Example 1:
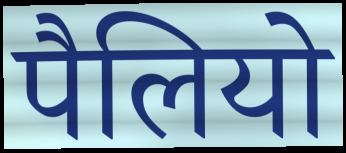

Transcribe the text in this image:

पैलियो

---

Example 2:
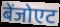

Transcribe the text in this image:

बेंजोएट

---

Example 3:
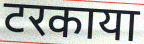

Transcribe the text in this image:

टरकाया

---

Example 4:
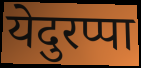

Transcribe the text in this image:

येदुरप्पा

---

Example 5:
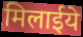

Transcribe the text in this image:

मिलाईये